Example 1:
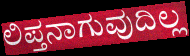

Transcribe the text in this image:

ಲಿಪ್ತನಾಗುವುದಿಲ್ಲ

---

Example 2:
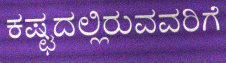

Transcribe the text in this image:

ಕಷ್ಟದಲ್ಲಿರುವವರಿಗೆ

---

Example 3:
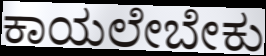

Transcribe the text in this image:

ಕಾಯಲೇಬೇಕು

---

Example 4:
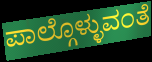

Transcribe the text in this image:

ಪಾಲ್ಗೊಳ್ಳುವಂತೆ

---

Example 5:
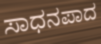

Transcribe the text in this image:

ಸಾಧನಪಾದ